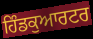
ਹਿੰਡਕੁਆਰਟਰ